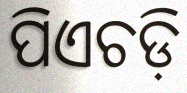
ପିଏଚଡ଼ି